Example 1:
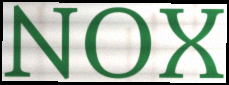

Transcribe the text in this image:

NOX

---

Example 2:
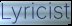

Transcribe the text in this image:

Lyricist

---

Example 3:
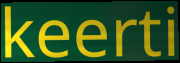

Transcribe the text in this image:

keerti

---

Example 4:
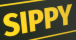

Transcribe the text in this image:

SIPPY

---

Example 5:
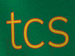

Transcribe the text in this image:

tcs